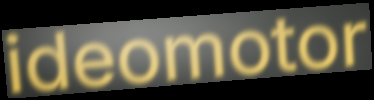
ideomotor